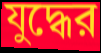
যুদ্ধের